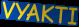
VYAKTI